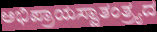
ಅಭಿಪ್ರಾಯಸ್ವಾತಂತ್ರ್ಯದ